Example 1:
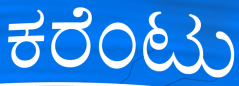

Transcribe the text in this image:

ಕರೆಂಟು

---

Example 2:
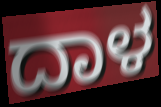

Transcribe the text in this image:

ದಾಳ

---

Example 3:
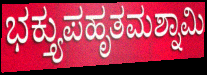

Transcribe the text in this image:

ಭಕ್ತ್ಯುಪಹೃತಮಶ್ನಾಮಿ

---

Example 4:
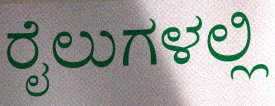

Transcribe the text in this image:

ರೈಲುಗಳಲ್ಲಿ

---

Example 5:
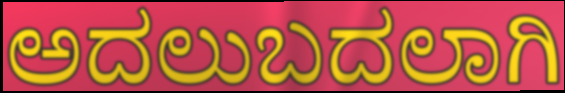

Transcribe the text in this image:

ಅದಲುಬದಲಾಗಿ